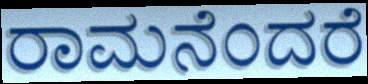
ರಾಮನೆಂದರೆ